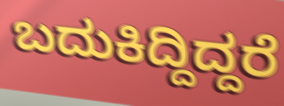
ಬದುಕಿದ್ದಿದ್ದರೆ